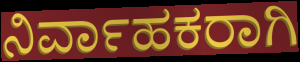
ನಿರ್ವಾಹಕರಾಗಿ